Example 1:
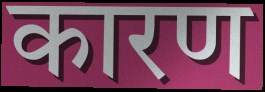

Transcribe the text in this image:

कारण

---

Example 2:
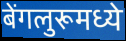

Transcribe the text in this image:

बेंगलुरूमध्ये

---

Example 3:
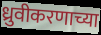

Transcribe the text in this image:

ध्रुवीकरणाच्या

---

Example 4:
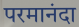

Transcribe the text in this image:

परमानंदा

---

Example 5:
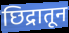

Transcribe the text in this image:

छिद्रातून